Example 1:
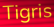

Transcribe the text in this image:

Tigris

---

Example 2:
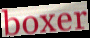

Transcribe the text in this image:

boxer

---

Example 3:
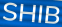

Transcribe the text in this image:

SHIB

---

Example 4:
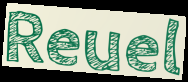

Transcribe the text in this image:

Reuel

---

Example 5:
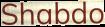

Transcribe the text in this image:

Shabdo